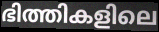
ഭിത്തികളിലെ